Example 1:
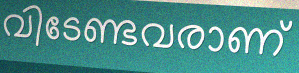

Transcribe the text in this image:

വിടേണ്ടവരാണ്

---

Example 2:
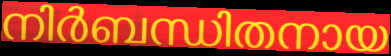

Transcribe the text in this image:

നിർബന്ധിതനായ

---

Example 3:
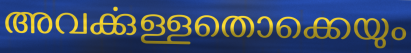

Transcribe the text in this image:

അവൎക്കുള്ളതൊക്കെയും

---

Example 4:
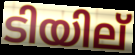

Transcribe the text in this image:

ടിയില്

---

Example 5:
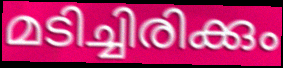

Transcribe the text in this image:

മടിച്ചിരിക്കും